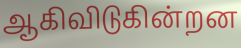
ஆகிவிடுகின்றன